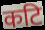
कटि